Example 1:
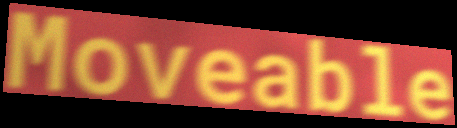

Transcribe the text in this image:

Moveable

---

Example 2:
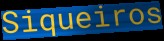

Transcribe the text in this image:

Siqueiros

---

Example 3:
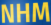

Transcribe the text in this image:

NHM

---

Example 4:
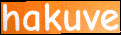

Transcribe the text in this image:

hakuve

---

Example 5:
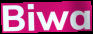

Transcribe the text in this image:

Biwa